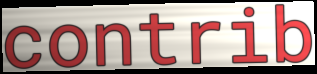
contrib